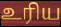
உரிய